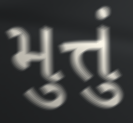
મુત્તું